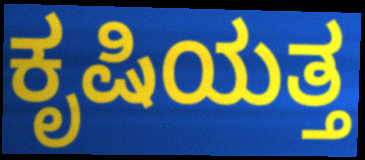
ಕೃಷಿಯತ್ತ